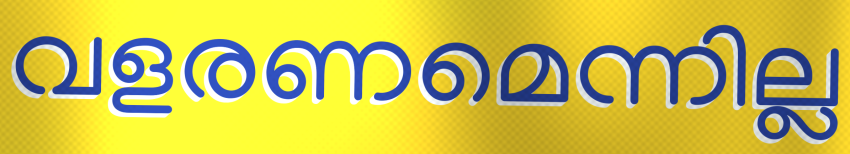
വളരണമെന്നില്ല